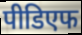
पीडिएफ